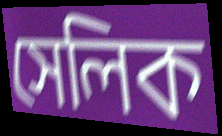
সেলিক